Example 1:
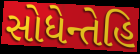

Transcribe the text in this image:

સોધેન્તેહિ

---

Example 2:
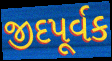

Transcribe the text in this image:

જીદપૂર્વક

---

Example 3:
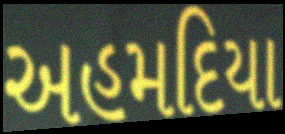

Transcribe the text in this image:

અહમદિયા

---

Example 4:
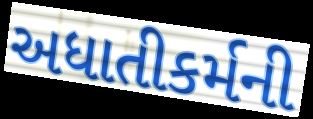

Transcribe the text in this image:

અધાતીકર્મની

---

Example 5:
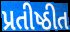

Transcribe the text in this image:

પ્રતીષ્ઠીત